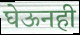
घेऊनही